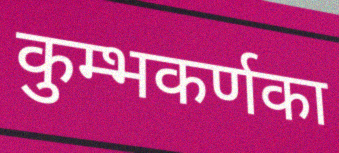
कुम्भकर्णका